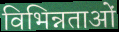
विभिन्नताओं